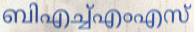
ബിഎച്ച്എംഎസ്